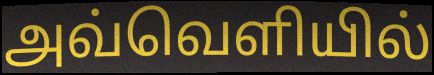
அவ்வெளியில்